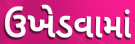
ઉખેડવામાં